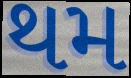
થમ